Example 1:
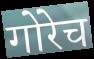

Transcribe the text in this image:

गोरेच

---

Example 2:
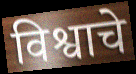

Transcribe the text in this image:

विश्वाचे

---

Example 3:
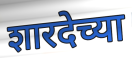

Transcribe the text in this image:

शारदेच्या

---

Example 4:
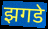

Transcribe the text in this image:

झगडे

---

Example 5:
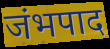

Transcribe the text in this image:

जंभपाद